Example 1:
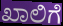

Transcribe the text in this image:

ಖಾಲಿಗೆ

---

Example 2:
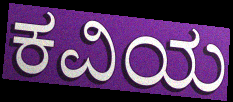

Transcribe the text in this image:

ಕವಿಯ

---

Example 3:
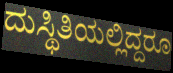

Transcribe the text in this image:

ದುಸ್ಥಿತಿಯಲ್ಲಿದ್ದರೂ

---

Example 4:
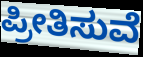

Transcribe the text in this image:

ಪ್ರೀತಿಸುವೆ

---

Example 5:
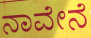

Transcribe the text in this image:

ನಾವೇನೆ